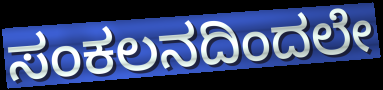
ಸಂಕಲನದಿಂದಲೇ